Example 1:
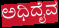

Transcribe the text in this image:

ಅಧಿದೈವ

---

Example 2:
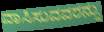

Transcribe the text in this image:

ವಾಸಿಸುವವರನ್ನು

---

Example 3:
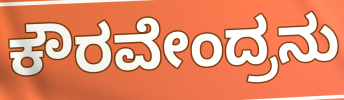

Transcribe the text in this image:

ಕೌರವೇಂದ್ರನು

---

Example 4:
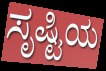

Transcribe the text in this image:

ಸೃಷ್ಟಿಯ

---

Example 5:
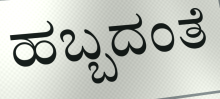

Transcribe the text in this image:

ಹಬ್ಬದಂತೆ